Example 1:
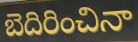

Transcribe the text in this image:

బెదిరించినా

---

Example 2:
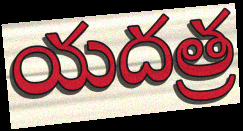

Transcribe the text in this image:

యదత్ర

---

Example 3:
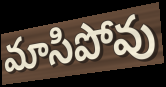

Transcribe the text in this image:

మాసిపోవు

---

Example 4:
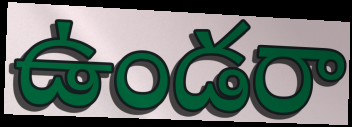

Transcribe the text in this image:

ఉండరా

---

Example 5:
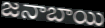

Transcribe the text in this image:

జనాబాయి